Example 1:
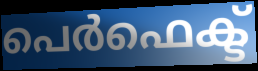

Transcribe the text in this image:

പെർഫെക്ട്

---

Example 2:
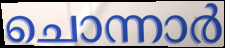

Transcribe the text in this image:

ചൊന്നാർ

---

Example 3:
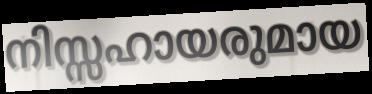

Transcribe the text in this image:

നിസ്സഹായരുമായ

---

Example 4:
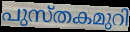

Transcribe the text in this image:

പുസ്തകമുറി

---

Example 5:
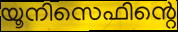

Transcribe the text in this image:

യൂനിസെഫിന്റെ